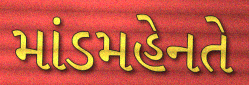
માંડમહેનતે